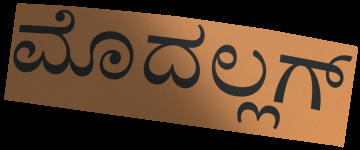
ಮೊದಲ್ಲಗ್